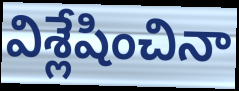
విశ్లేషించినా